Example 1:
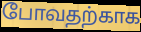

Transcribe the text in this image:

போவதற்காக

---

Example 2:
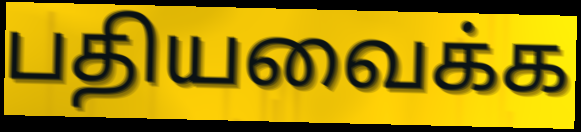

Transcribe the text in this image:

பதியவைக்க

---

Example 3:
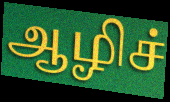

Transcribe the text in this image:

ஆழிச்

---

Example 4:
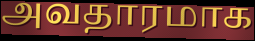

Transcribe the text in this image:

அவதாரமாக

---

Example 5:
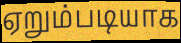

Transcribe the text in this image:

ஏறும்படியாக